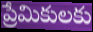
ప్రేమికులకు